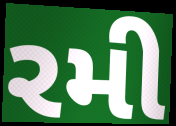
રમી